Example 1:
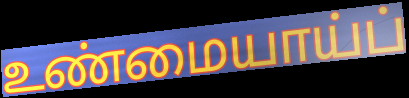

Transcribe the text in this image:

உண்மையாய்ப்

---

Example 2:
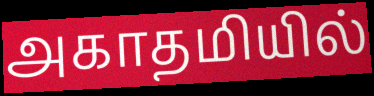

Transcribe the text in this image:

அகாதமியில்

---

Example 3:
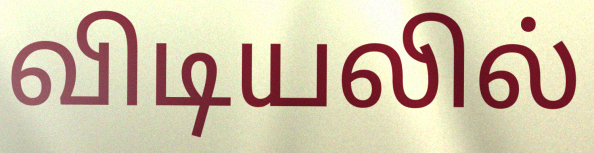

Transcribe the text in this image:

விடியலில்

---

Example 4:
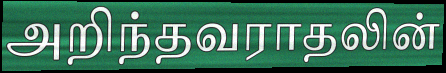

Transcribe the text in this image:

அறிந்தவராதலின்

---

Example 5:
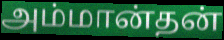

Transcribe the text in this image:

அம்மான்தன்